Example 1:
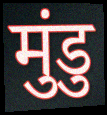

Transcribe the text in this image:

मुंडु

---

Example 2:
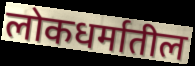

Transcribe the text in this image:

लोकधर्मातील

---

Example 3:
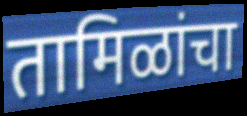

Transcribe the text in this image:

तामिळांचा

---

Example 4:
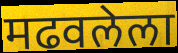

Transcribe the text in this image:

मढवलेला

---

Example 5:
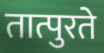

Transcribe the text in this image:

तात्पुरते